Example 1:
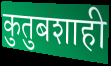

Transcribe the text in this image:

कुतुबशाही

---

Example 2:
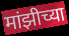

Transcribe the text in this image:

मांझीच्या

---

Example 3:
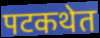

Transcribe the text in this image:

पटकथेत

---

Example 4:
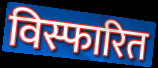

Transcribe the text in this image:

विस्फारित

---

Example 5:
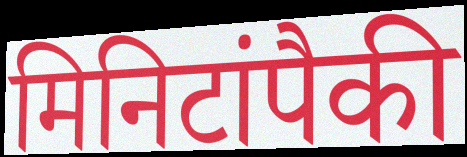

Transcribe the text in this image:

मिनिटांपैकी